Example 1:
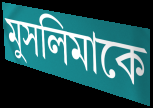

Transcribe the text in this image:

মুসলিমাকে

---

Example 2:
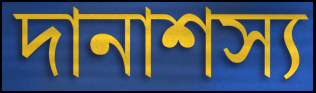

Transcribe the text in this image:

দানাশস্য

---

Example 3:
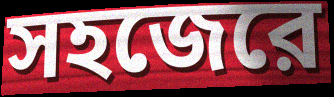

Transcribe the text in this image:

সহজেরে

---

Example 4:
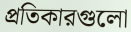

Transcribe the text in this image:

প্রতিকারগুলো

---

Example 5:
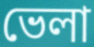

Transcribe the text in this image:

ভেলা